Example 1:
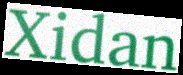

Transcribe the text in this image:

Xidan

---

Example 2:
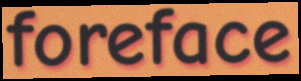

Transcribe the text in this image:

foreface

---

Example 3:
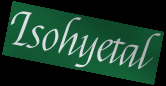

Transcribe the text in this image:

Isohyetal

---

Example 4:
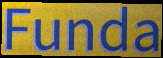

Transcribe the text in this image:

Funda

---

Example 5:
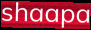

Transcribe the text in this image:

shaapa